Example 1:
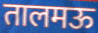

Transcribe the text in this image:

तालमऊ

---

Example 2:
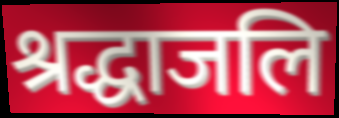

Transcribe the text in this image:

श्रद्धाजलि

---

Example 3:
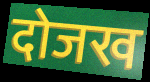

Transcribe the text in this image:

दोजख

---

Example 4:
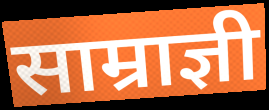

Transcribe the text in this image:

साम्राज्ञी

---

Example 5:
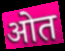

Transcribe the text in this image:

ओत